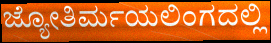
ಜ್ಯೋತಿರ್ಮಯಲಿಂಗದಲ್ಲಿ